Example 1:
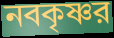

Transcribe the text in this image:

নবকৃষ্ণর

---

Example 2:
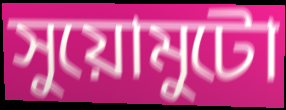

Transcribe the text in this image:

সুয়োমুটো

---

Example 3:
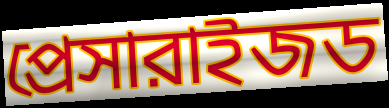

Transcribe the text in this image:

প্রেসারাইজড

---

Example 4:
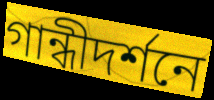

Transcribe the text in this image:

গান্ধীদর্শনে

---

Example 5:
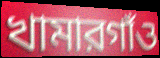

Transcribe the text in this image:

খামারগাঁও